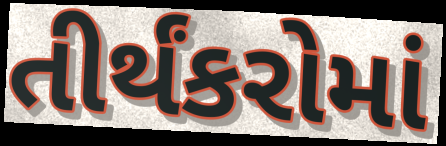
તીર્થંકરોમાં